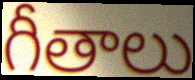
గీతాలు